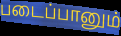
படைப்பானும்